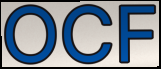
OCF